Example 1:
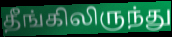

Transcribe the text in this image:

தீங்கிலிருந்து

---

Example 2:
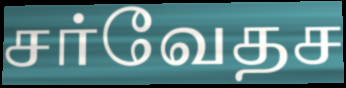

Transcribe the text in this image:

சர்வேதச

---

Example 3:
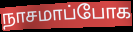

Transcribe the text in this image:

நாசமாப்போக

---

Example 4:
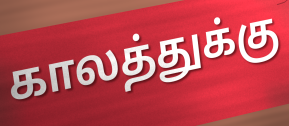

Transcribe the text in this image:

காலத்துக்கு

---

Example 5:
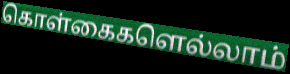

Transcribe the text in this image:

கொள்கைகளெல்லாம்